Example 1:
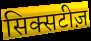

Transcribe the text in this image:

सिक्सटीज़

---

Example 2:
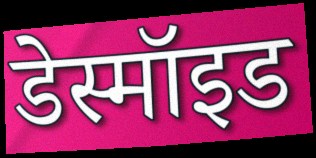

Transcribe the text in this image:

डेस्मॉइड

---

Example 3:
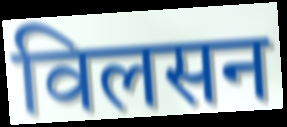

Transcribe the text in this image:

विलसन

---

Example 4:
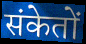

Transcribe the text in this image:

संकेतों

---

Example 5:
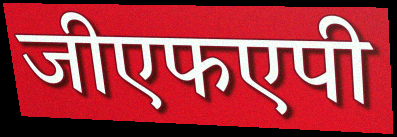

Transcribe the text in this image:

जीएफएपी